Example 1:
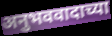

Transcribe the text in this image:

अनुभववादाच्या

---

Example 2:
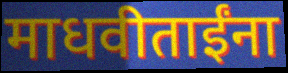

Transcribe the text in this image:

माधवीताईंना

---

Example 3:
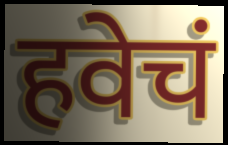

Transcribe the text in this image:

हवेचं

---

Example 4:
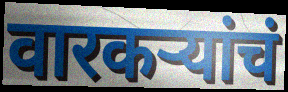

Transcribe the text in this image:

वारकऱ्यांचं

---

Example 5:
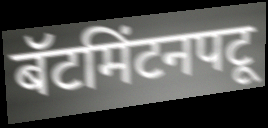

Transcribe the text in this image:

बॅटमिंटनपटू